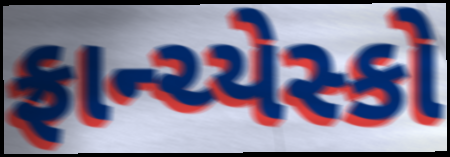
ફ્રાન્ચ્યેસ્કો